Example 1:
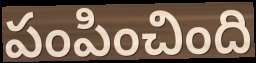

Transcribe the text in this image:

పంపించింది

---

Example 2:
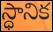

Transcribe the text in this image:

స్ధానిక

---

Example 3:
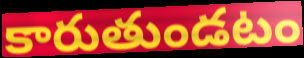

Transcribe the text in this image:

కారుతుండటం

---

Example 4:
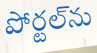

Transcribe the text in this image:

పోర్టల్‌ను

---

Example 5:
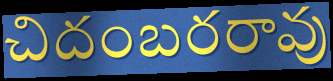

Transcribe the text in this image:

చిదంబరరావు